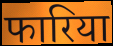
फारिया